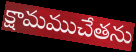
క్షామముచేతను